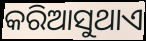
କରିଆସୁଥାଏ